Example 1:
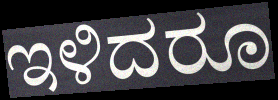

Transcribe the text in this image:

ಇಳಿದರೂ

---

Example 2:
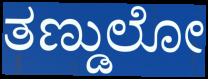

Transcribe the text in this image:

ತಣ್ಡುಲೋ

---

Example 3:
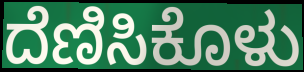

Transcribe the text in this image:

ದೆಣಿಸಿಕೊಳು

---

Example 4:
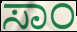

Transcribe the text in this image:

ಸಾಂ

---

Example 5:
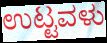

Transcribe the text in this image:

ಉಟ್ಟವಳು